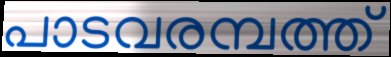
പാടവരമ്പത്ത്